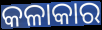
କଳାକାର